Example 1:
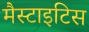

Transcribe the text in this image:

मैस्टाइटिस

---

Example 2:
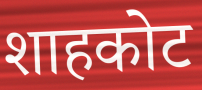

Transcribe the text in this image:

शाहकोट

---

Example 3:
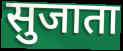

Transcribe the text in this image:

सुजाता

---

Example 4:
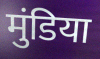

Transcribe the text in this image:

मुंडिया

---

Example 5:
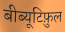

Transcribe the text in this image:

बीब्यूटिफ़ुल